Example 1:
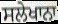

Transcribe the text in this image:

ਸਲੇਖਾਨਾ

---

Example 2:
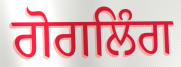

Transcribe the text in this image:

ਗੋਗਲਿੰਗ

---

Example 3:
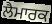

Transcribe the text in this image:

ਲੈਮਾਰਕ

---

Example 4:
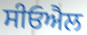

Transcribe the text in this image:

ਸੀਓਐਲ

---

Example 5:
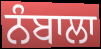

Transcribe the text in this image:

ਨੰਬਾਲਾ